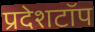
प्रदेशटॉप